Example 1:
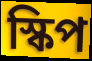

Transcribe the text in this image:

স্কিপ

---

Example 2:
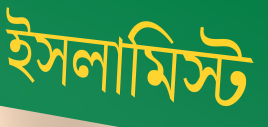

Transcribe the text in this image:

ইসলামিস্ট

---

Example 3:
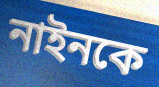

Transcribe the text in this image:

নাইনকে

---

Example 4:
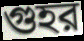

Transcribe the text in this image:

গুহর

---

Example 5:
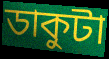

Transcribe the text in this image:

ডাকুটা